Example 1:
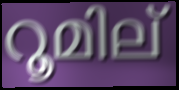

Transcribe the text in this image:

റൂമില്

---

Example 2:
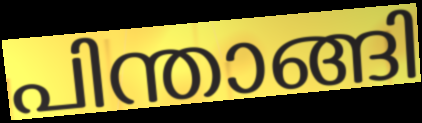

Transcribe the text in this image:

പിന്താങ്ങി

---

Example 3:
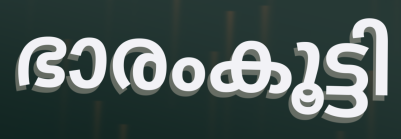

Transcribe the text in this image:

ഭാരംകൂട്ടി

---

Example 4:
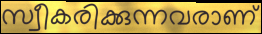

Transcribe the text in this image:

സ്വീകരിക്കുന്നവരാണ്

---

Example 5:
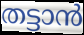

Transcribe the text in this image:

തട്ടാൻ